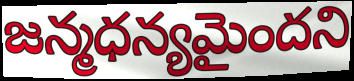
జన్మధన్యమైందని